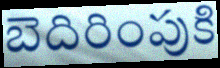
బెదిరింపుకి